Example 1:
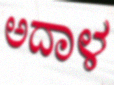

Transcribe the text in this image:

ಅದಾಳ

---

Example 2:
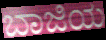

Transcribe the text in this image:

ಬಾಜಿಯ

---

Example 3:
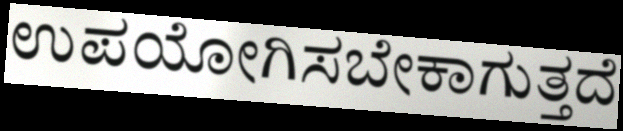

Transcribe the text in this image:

ಉಪಯೋಗಿಸಬೇಕಾಗುತ್ತದೆ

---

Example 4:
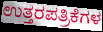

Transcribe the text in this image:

ಉತ್ತರಪತ್ರಿಕೆಗಳ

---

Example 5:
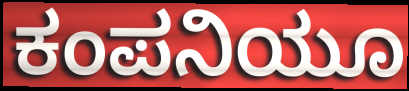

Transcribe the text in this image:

ಕಂಪನಿಯೂ